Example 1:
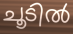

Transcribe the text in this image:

ചൂടിൽ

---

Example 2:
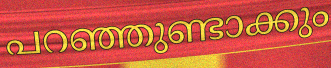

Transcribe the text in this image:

പറഞ്ഞുണ്ടാക്കും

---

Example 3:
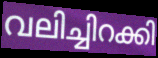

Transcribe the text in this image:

വലിച്ചിറക്കി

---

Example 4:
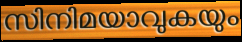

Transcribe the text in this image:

സിനിമയാവുകയും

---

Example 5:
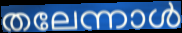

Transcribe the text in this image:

തലേന്നാൾ